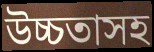
উচ্চতাসহ